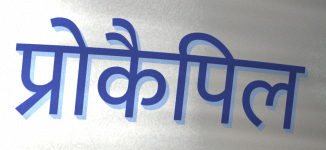
प्रोकैपिल